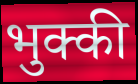
भुक्की